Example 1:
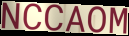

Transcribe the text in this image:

NCCAOM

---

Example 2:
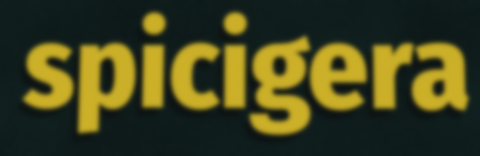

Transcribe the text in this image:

spicigera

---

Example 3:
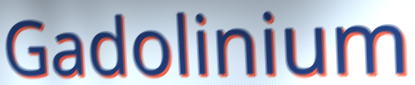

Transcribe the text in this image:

Gadolinium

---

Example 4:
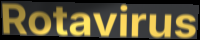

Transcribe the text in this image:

Rotavirus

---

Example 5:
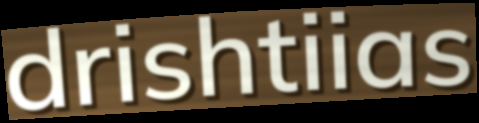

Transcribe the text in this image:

drishtiias